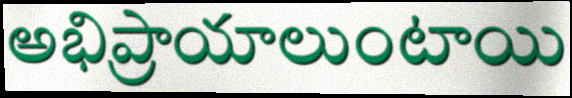
అభిప్రాయాలుంటాయి